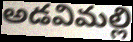
అడవిమల్లి